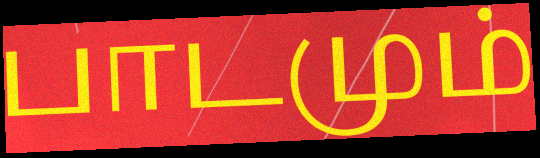
பாடமும்